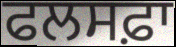
ਫਲਸਫ਼ਾ